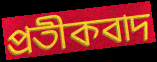
প্ৰতীকবাদ